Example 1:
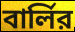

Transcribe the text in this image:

বার্লির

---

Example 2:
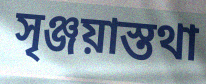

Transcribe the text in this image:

সৃঞ্জয়াস্তথা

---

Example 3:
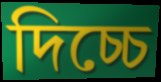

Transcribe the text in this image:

দিচ্চে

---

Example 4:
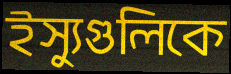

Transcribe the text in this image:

ইস্যুগুলিকে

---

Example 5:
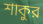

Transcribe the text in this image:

শাকুর